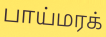
பாய்மரக்